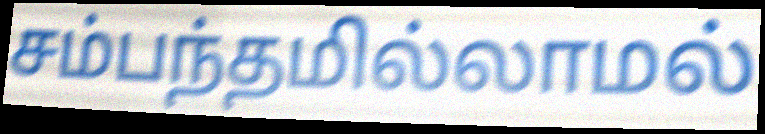
சம்பந்தமில்லாமல்